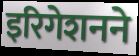
इरिगेशनने